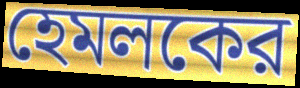
হেমলকের